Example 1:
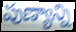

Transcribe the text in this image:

పుణ్యాన్ని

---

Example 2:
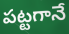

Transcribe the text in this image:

పట్టగానే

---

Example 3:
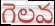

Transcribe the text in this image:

గెలవ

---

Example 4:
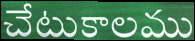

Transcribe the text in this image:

చేటుకాలము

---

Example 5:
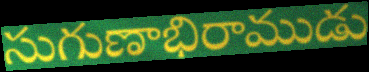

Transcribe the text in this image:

సుగుణాభిరాముడు